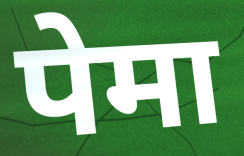
पेमा